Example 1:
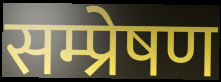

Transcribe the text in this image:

सम्प्रेषण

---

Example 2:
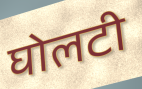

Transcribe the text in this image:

घोलटी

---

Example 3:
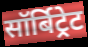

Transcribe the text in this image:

सॉर्बिट्रेट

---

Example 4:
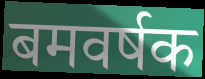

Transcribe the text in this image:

बमवर्षक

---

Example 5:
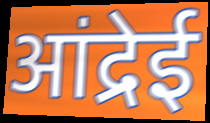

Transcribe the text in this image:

आंद्रेई